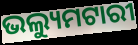
ଭଲ୍ୟୁମଟାରୀ